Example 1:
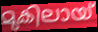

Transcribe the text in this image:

മുകിലായ്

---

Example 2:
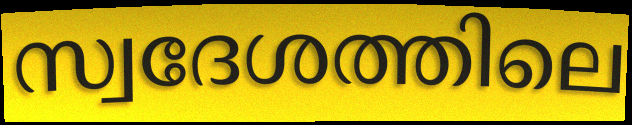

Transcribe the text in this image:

സ്വദേശത്തിലെ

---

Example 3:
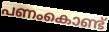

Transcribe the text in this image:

പണംകൊണ്ട്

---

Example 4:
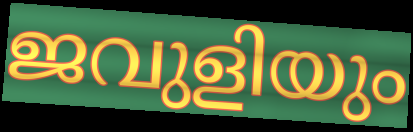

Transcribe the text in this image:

ജവുളിയും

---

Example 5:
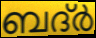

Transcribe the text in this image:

ബദ്ർ